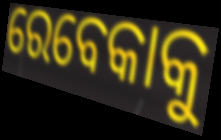
ରେବେକାକୁ